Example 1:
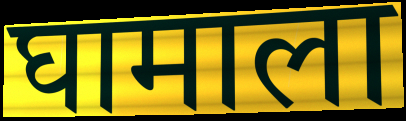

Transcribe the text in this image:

घामाला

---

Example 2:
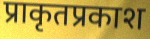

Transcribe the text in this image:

प्राकृतप्रकाश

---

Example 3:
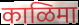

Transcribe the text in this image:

काळिमा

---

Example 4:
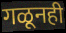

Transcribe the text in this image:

गळूनही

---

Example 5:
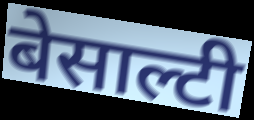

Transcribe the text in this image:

बेसाल्टी